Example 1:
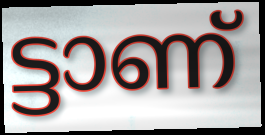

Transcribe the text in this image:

ട്ടാണ്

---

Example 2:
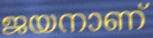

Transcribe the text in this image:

ജയനാണ്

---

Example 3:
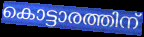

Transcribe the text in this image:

കൊട്ടാരത്തിന്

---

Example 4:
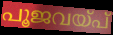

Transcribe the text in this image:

പൂജവയ്പ്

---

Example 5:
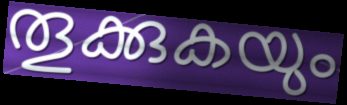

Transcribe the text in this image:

തൂക്കുകയും